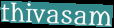
thivasam